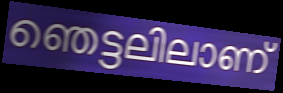
ഞെട്ടലിലാണ്